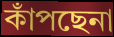
কাঁপছেনা